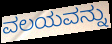
ವಲಯವನ್ನು